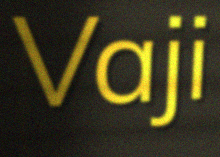
Vaji